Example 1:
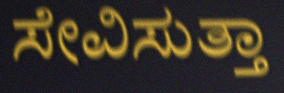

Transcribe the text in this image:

ಸೇವಿಸುತ್ತಾ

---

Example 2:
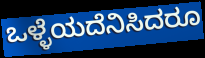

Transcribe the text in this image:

ಒಳ್ಳೆಯದೆನಿಸಿದರೂ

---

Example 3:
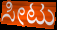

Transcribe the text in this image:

ಸೀಟು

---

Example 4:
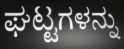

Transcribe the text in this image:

ಘಟ್ಟಗಳನ್ನು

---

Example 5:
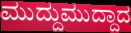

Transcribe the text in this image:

ಮುದ್ದುಮುದ್ದಾದ